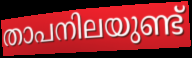
താപനിലയുണ്ട്